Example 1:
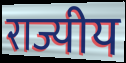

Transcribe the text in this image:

राज्यीय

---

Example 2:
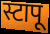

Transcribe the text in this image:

स्टापू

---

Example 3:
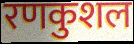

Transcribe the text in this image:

रणकुशल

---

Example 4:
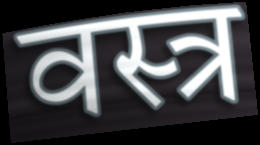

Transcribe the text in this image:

वस्त्र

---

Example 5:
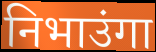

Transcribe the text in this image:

निभाउंगा